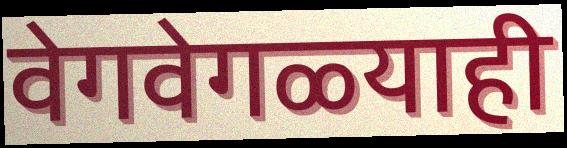
वेगवेगळ्याही